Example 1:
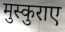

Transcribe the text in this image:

मुस्कुराए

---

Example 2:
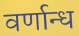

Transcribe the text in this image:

वर्णान्ध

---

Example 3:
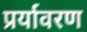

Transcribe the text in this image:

प्रर्यावरण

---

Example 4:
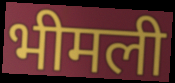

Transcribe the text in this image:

भीमली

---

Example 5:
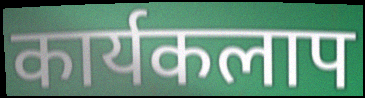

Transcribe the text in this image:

कार्यकलाप